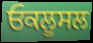
ਓਕਲੂਸਲ